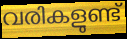
വരികളുണ്ട്